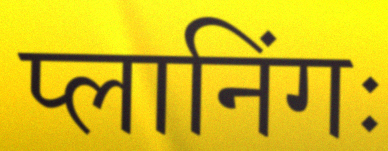
प्लानिंगः